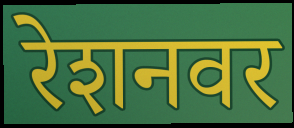
रेशनवर